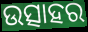
ଉତ୍ସାହର